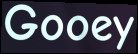
Gooey